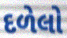
દળેલો